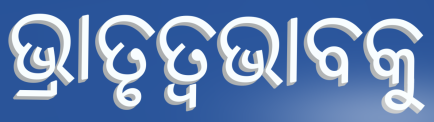
ଭ୍ରାତୃତ୍ୱଭାବକୁ